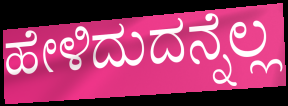
ಹೇಳಿದುದನ್ನೆಲ್ಲ